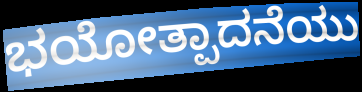
ಭಯೋತ್ಪಾದನೆಯು